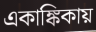
একাঙ্কিকায়